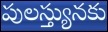
పులస్త్యునకు